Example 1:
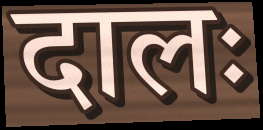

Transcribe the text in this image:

दालः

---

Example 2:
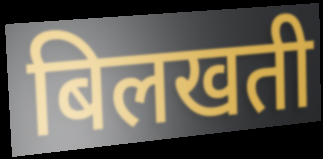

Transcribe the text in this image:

बिलखती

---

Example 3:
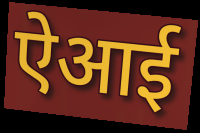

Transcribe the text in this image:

ऐआई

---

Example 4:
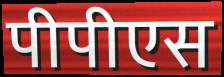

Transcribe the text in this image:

पीपीएस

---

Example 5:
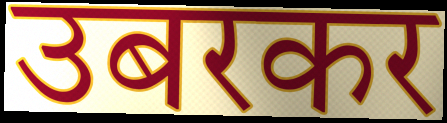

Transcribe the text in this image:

उबरकर